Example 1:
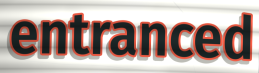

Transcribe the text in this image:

entranced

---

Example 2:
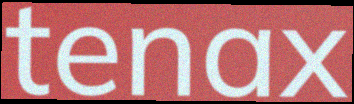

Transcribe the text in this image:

tenax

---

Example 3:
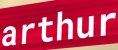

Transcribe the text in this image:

arthur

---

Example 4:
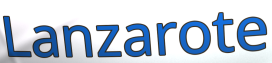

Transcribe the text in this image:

Lanzarote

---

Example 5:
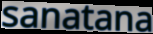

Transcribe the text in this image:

sanatana